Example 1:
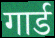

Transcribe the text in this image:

गार्ड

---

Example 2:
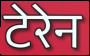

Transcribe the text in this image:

टेरेन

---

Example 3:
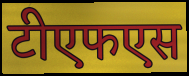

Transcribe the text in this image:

टीएफएस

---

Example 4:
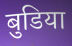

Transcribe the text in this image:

बुडिया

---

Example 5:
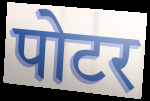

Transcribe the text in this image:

पोटर